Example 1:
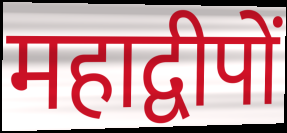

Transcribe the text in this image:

महाद्वीपों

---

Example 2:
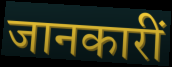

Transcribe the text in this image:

जानकारीं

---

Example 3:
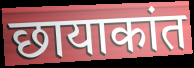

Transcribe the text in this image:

छायाकांत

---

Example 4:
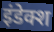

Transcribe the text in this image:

इंडेक्श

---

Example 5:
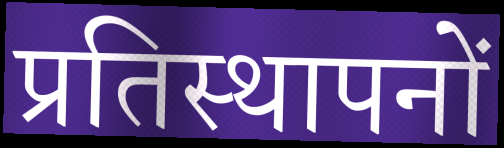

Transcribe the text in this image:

प्रतिस्थापनों